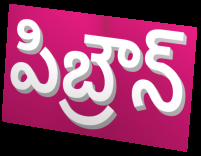
పిబ్రౌన్